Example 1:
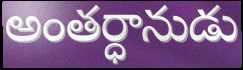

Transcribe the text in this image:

అంతర్ధానుడు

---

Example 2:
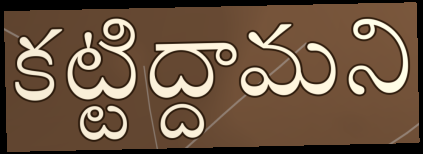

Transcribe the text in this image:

కట్టిద్దామని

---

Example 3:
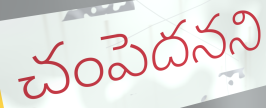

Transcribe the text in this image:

చంపెదనని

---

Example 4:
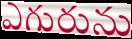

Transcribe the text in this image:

ఎగురును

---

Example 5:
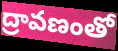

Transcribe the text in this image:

ద్రావణంతో